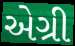
એગ્રી